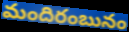
మందిరంబునం